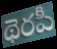
థెరపీ